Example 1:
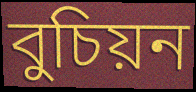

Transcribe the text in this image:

বুচিয়ন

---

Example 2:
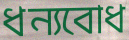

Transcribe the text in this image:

ধন্যবোধ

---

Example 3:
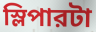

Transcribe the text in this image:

স্লিপারটা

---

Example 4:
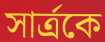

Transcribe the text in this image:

সার্ত্রকে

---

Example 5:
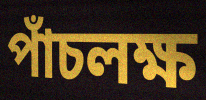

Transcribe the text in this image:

পাঁচলক্ষ